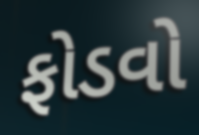
ફોડવો